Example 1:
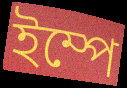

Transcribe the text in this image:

ইম্পে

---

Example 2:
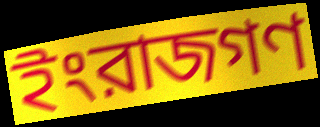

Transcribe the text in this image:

ইংরাজগণ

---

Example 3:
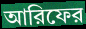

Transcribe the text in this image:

আরিফের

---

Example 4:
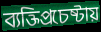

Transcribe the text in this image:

ব্যক্তিপ্রচেষ্টায়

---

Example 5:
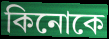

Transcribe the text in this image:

কিনোকে